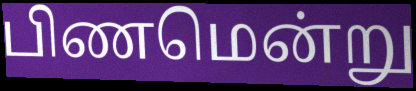
பிணமென்று